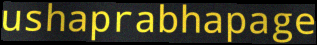
ushaprabhapage